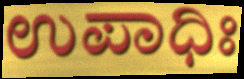
ಉಪಾಧಿಃ